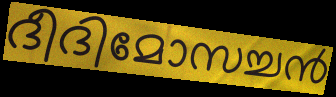
ദീദിമോസച്ചൻ